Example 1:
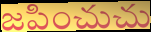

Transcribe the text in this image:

జపించుచు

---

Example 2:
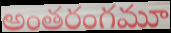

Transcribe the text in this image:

అంతరంగమూ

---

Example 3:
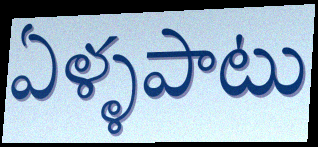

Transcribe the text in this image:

ఏళ్ళపాటు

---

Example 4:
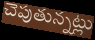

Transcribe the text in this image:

చెపుతున్నట్లు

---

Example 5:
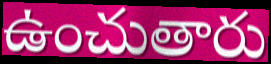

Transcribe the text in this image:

ఉంచుతారు